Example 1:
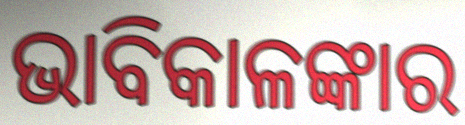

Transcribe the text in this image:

ଭାବିକାଳଙ୍କାର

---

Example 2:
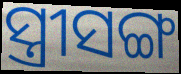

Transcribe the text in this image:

ସ୍ତ୍ରୀସଙ୍ଗ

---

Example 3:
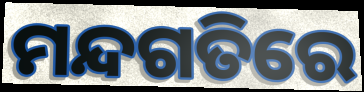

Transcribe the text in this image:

ମନ୍ଦଗତିରେ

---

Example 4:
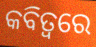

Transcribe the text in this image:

କବିତ୍ୱରେ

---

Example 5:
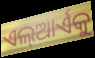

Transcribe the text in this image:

ଏଲ୍ଆର୍ଏକୁ